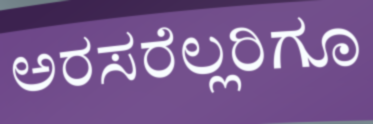
ಅರಸರೆಲ್ಲರಿಗೂ